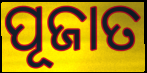
ପୂଜାତ